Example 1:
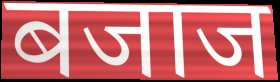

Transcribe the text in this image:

बजाज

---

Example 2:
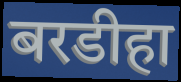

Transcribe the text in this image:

बरडीहा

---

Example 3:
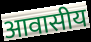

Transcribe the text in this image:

आवासीय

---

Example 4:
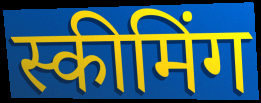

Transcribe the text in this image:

स्कीमिंग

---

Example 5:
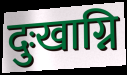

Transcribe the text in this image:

दुःखाग्नि